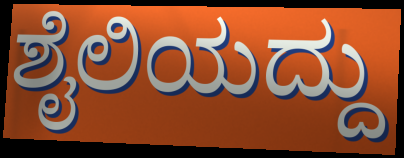
ಶೈಲಿಯದ್ದು